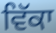
ਵਿੱਕਾ